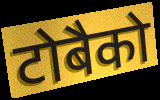
टोबैको